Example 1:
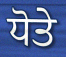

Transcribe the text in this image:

ਧੋਤੇ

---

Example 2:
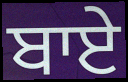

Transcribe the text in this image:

ਬਾਏ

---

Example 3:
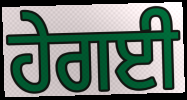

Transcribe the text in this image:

ਹੇਗਈ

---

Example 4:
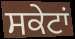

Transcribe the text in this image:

ਸਕੇਟਾਂ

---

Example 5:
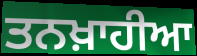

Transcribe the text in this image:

ਤਨਖ਼ਾਹੀਆ